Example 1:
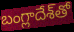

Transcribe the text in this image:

బంగ్లాదేశ్‌తో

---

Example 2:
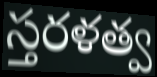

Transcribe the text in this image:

స్తరళత్వ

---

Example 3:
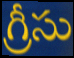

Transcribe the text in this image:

గ్రీసు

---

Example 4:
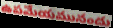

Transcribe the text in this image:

ఉపమేయమునందు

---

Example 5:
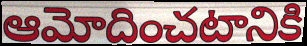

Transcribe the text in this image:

ఆమోదించటానికి